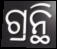
ଗ୍ରନ୍ଥି